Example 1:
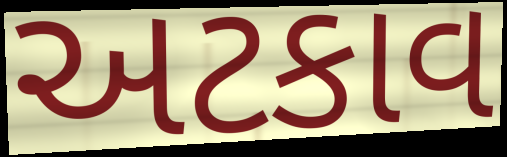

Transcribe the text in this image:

અટકાવ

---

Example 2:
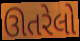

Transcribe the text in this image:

ઊતરેલો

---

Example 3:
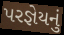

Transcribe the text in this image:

પરજ્ઞેયનું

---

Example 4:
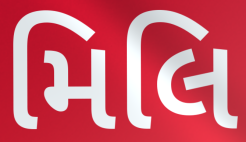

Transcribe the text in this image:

મિલિ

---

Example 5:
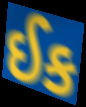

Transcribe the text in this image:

ઈક